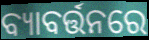
ବ୍ୟାବର୍ତ୍ତନରେ